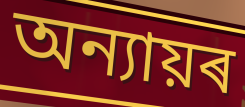
অন্যায়ৰ